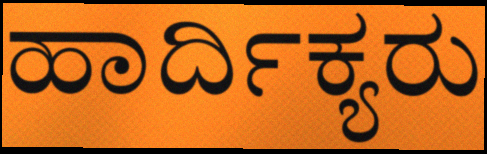
ಹಾರ್ದಿಕ್ಯರು